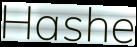
Hashe